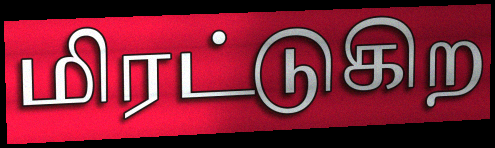
மிரட்டுகிற